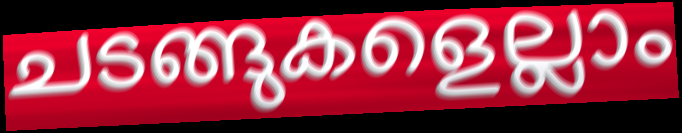
ചടങ്ങുകളെല്ലാം